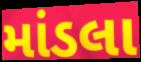
માંડલા